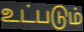
உட்படும்